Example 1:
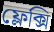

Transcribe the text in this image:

ফ্লেক্সি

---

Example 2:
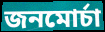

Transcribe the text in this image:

জনমোর্চা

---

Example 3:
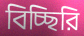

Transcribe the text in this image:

বিচ্ছিরি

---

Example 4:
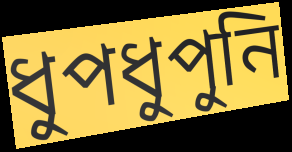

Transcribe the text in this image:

ধুপধুপুনি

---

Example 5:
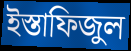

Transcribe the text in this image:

ইস্তাফিজুল